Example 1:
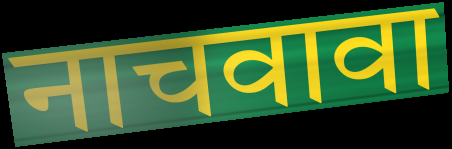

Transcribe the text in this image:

नाचवावा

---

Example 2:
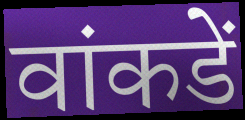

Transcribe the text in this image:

वांकडें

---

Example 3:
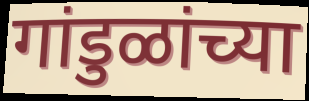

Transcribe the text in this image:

गांडुळांच्या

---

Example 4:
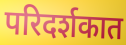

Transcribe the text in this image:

परिदर्शकात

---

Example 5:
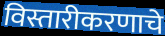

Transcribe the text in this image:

विस्तारीकरणाचे